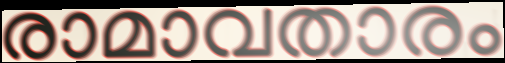
രാമാവതാരം